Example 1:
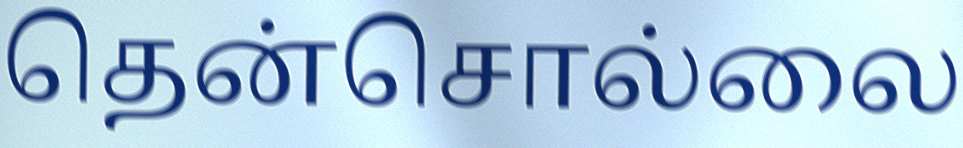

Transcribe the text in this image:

தென்சொல்லை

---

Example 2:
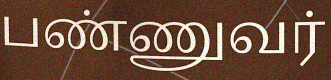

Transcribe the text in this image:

பண்ணுவர்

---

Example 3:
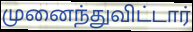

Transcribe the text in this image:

முனைந்துவிட்டார்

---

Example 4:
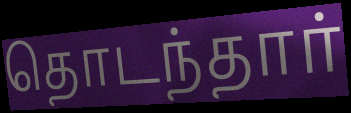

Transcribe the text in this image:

தொடந்தார்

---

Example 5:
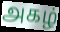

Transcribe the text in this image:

அகழ்